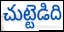
చుట్టెడిది